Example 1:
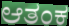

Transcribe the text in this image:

ಆತಂಕ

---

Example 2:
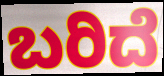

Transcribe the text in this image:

ಬರಿದೆ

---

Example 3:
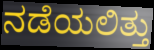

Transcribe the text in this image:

ನಡೆಯಲಿತ್ತು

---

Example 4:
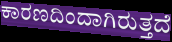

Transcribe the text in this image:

ಕಾರಣದಿಂದಾಗಿರುತ್ತದೆ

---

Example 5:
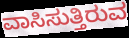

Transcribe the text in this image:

ವಾಸಿಸುತ್ತಿರುವ